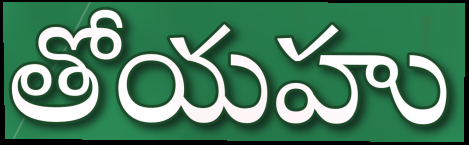
తోయహు